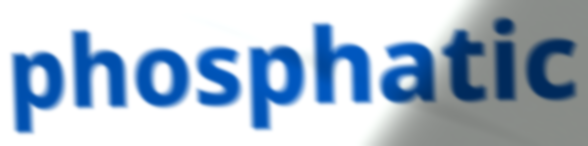
phosphatic